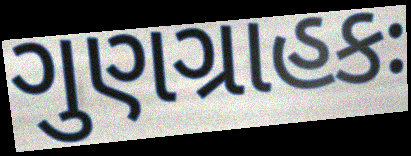
ગુણગ્રાહકઃ